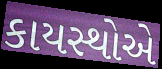
કાયસ્થોએ